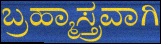
ಬ್ರಹ್ಮಾಸ್ತ್ರವಾಗಿ